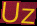
Uz